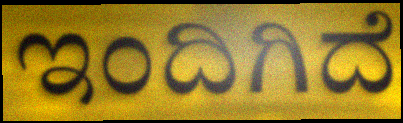
ಇಂದಿಗಿದೆ